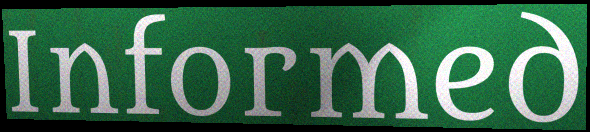
Informed